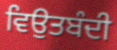
ਵਿਉਤਬੰਦੀ